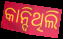
କାନ୍ଦିଥିଲି